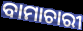
ବାମାଚାରୀ